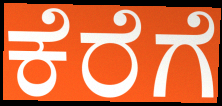
ಕೆರೆಗೆ